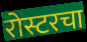
रोस्टरचा